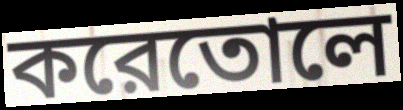
করেতোলে